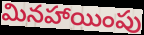
మినహాయింపు